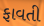
ફાવતી